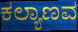
ಕಲ್ಯಾಣವ